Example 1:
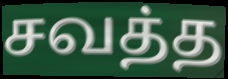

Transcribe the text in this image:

சவத்த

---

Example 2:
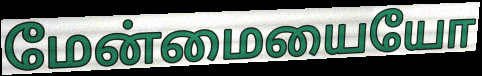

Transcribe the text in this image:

மேன்மையையோ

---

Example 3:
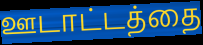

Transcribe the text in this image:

ஊடாட்டத்தை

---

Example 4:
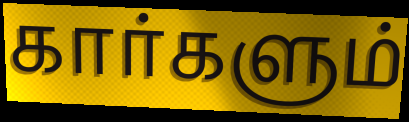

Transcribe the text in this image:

கார்களும்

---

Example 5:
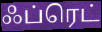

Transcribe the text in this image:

ஃப்ரெட்